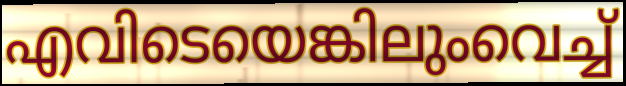
എവിടെയെങ്കിലുംവെച്ച്